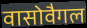
वासोवैगल